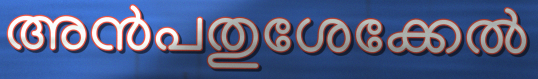
അൻപതുശേക്കേൽ